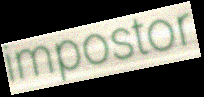
impostor